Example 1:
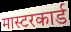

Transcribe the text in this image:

मास्टरकार्ड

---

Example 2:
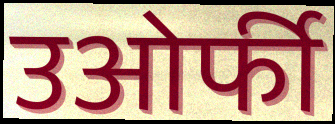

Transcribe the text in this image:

उओर्फी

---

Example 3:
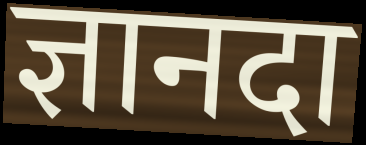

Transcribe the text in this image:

ज्ञानदा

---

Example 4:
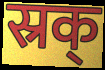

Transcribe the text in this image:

स्रक्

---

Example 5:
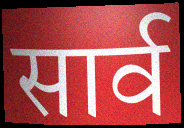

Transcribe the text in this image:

सार्व